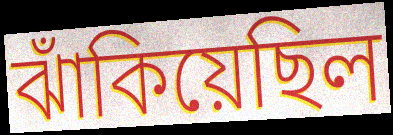
ঝাঁকিয়েছিল